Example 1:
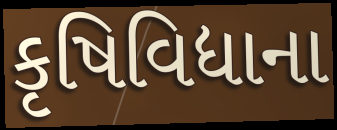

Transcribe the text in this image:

કૃષિવિદ્યાના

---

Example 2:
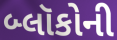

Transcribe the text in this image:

બ્લૉકોની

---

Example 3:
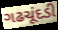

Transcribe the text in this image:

ગઢચૂંદડી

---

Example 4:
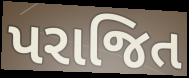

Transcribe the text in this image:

પરાજિત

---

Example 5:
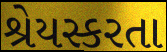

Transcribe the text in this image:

શ્રેયસ્કરતા